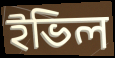
ইভিল